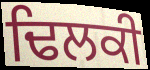
ਢਿਲਕੀ